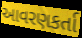
આવરણકર્તા